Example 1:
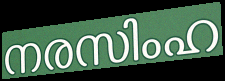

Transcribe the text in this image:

നരസിംഹ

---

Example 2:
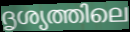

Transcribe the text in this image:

ദൃശ്യത്തിലെ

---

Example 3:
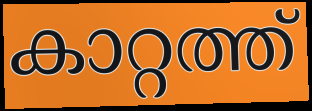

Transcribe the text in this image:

കാറ്റത്ത്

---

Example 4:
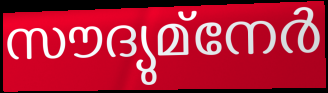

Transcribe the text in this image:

സൗദ്യുമ്നേർ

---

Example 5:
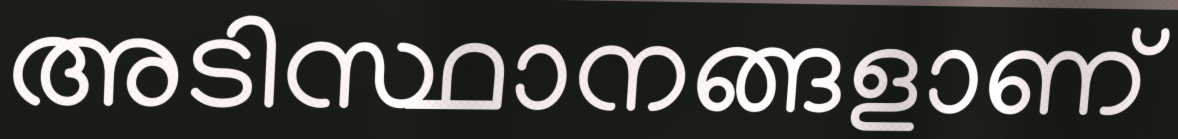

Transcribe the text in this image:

അടിസ്ഥാനങ്ങളാണ്